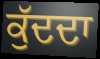
ਕੁੱਦਦਾ